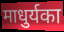
माधुर्यका